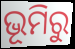
ଭୂମିରୁ